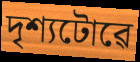
দৃশ্যটোৱে